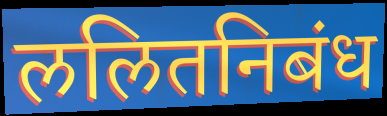
ललितनिबंध